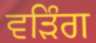
ਵੜਿੰਗ